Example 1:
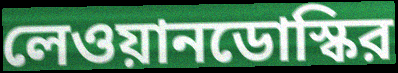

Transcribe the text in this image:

লেওয়ানডোস্কির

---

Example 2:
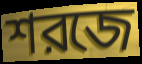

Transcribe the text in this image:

শরজে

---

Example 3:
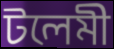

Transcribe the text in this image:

টলেমী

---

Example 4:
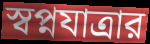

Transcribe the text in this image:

স্বপ্নযাত্রার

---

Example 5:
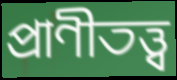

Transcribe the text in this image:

প্রাণীতত্ত্ব